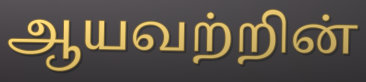
ஆயவற்றின்